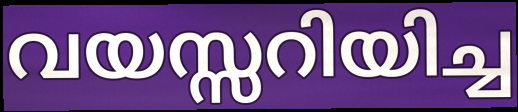
വയസ്സറിയിച്ച